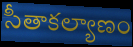
సీతాకల్యాణం